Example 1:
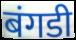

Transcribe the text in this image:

बंगडी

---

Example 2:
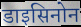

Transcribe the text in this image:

डाइसिनोन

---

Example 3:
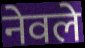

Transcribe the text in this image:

नेवले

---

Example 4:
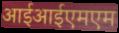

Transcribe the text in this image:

आईआईएमएम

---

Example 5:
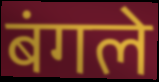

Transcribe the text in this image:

बंगले